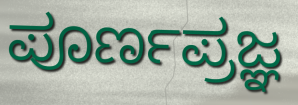
ಪೂರ್ಣಪ್ರಜ್ಞ